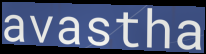
avastha